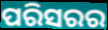
ପରିସରର